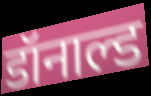
डॉनाल्ड